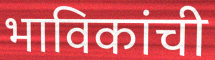
भाविकांची